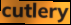
cutlery